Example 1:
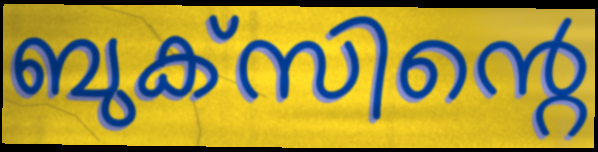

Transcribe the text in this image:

ബുക്‌സിന്റെ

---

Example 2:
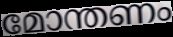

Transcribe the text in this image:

മോന്തണം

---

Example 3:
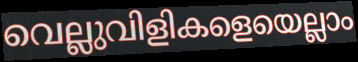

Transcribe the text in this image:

വെല്ലുവിളികളെയെല്ലാം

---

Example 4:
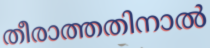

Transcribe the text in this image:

തീരാത്തതിനാൽ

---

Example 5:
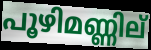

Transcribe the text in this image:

പൂഴിമണ്ണില്